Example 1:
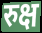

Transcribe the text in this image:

रुक्ष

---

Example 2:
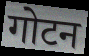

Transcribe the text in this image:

गोटन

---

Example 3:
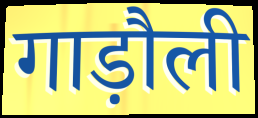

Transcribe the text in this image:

गाड़ौली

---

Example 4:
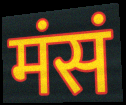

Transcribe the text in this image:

मंसं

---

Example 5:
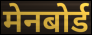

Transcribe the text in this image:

मेनबोर्ड